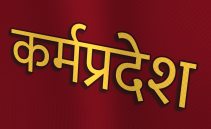
कर्मप्रदेश